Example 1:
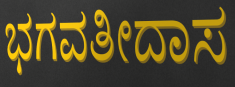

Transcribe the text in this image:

ಭಗವತೀದಾಸ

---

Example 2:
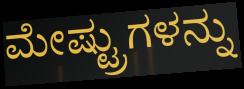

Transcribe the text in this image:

ಮೇಷ್ಟ್ರುಗಳನ್ನು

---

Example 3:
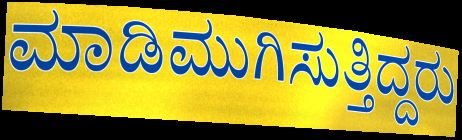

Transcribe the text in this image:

ಮಾಡಿಮುಗಿಸುತ್ತಿದ್ದರು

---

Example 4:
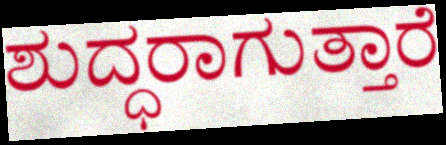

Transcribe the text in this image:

ಶುದ್ಧರಾಗುತ್ತಾರೆ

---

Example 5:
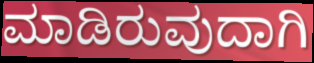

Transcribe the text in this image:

ಮಾಡಿರುವುದಾಗಿ